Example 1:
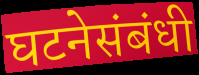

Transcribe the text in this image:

घटनेसंबंधी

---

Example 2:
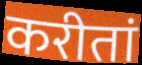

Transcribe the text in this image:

करीतां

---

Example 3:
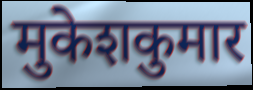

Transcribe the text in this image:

मुकेशकुमार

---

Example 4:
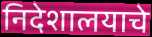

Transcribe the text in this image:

निदेशालयाचे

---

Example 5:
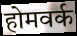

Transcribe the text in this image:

होमवर्क